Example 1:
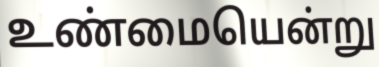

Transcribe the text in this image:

உண்மையென்று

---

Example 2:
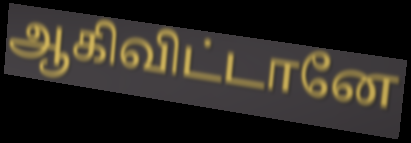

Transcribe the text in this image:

ஆகிவிட்டானே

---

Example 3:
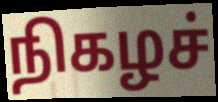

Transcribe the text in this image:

நிகழச்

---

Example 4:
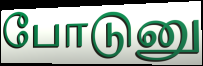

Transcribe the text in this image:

போடுனு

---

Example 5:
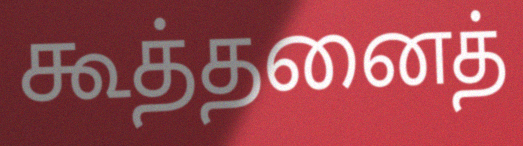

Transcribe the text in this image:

கூத்தனைத்